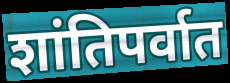
शांतिपर्वात